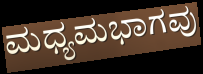
ಮಧ್ಯಮಭಾಗವು